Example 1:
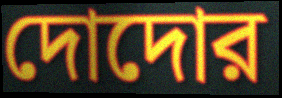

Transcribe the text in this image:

দোদোর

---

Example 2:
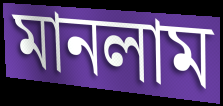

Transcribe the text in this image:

মানলাম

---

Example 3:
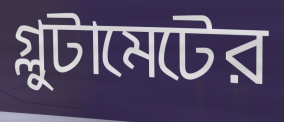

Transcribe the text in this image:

গ্লুটামেটের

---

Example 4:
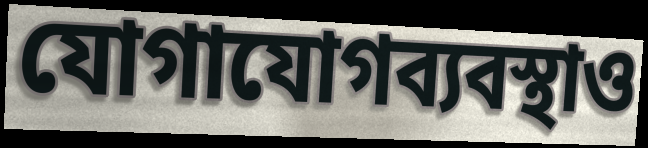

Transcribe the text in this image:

যোগাযোগব্যবস্থাও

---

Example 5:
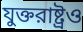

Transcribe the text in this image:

যুক্তরাষ্ট্রও